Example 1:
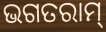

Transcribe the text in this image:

ଭଗତରାମ୍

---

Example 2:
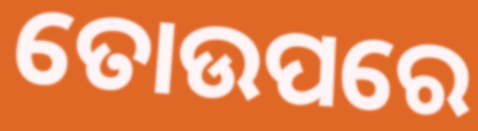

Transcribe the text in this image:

ତୋଉପରେ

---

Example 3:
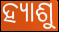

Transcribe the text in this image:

ହ୍ୟାଶୁ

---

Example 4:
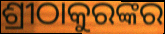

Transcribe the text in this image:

ଶ୍ରୀଠାକୁରଙ୍କର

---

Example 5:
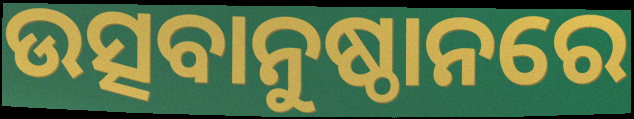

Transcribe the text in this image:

ଉତ୍ସବାନୁଷ୍ଠାନରେ